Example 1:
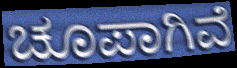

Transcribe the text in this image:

ಚೂಪಾಗಿವೆ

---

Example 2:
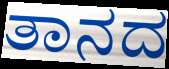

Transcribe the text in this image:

ತಾನದ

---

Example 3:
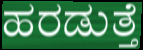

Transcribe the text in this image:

ಹರಡುತ್ತೆ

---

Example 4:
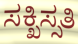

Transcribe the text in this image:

ಸಕ್ಖಿಸ್ಸತಿ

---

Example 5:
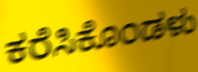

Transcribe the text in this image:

ಕರೆಸಿಕೊಂಡಳು